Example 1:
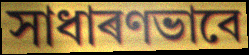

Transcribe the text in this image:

সাধাৰণভাবে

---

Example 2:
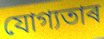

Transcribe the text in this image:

যোগ্যতাৰ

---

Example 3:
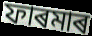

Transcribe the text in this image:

ফাৰমাৰ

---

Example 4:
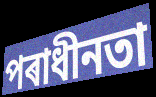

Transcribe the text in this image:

পৰাধীনতা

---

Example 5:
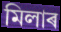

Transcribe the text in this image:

মিলাৰ